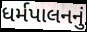
ધર્મપાલનનું